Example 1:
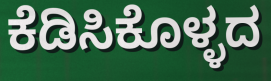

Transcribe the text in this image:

ಕೆಡಿಸಿಕೊಳ್ಳದ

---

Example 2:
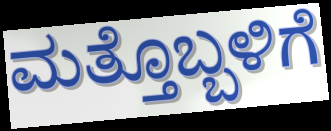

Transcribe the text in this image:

ಮತ್ತೊಬ್ಬಳಿಗೆ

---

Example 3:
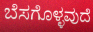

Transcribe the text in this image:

ಬೆಸಗೊಳ್ಳವುದೆ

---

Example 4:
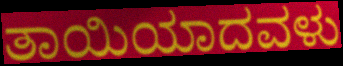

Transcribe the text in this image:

ತಾಯಿಯಾದವಳು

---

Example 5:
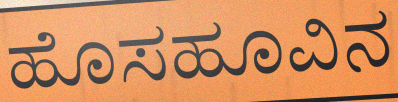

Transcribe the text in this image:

ಹೊಸಹೂವಿನ